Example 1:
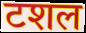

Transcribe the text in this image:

टशल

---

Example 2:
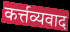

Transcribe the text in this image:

कर्त्तव्यवाद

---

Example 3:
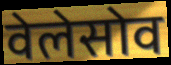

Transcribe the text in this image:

वेलेसोव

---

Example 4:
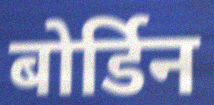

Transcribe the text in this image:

बोर्डिन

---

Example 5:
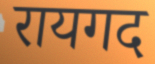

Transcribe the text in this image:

रायगद